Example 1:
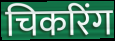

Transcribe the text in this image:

चिकरिंग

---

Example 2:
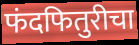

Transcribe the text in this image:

फंदफितुरीचा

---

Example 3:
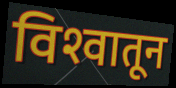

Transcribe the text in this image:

विश्वातून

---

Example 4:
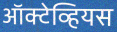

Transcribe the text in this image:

ऑक्टेव्हियस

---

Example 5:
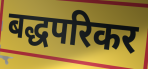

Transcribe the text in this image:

बद्धपरिकर